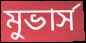
মুভার্স